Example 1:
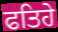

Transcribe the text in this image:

ਫਤਿਹੇ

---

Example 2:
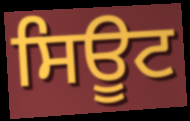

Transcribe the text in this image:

ਸਿਊਟ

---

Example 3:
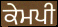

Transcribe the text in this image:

ਕੇਮਪੀ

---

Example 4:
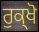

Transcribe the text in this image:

ਰੁਕ੍ਖੋ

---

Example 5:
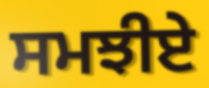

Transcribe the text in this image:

ਸਮਝੀਏ